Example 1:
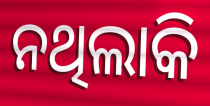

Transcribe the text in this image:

ନଥିଲାକି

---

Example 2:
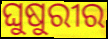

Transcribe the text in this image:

ଘୁଷୁରୀର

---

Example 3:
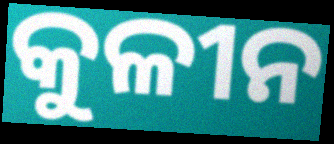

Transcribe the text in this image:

କୁଳୀନ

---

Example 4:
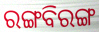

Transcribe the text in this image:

ରଙ୍ଗବିରଙ୍ଗ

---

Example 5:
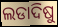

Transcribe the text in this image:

ଲଡାଦିଷୁ